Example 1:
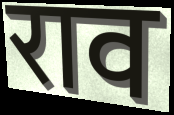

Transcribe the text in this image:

राव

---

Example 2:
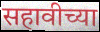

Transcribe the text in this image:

सहावीच्या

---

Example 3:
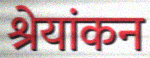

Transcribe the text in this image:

श्रेयांकन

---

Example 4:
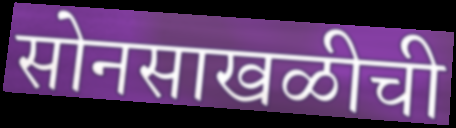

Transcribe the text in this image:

सोनसाखळीची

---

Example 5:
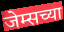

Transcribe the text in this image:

जेम्सच्या